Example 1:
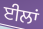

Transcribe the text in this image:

ਈਲਾਂ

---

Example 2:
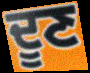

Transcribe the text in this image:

ਦੂਣ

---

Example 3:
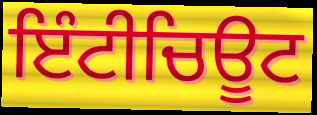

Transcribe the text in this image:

ਇੰਟੀਚਿਊਟ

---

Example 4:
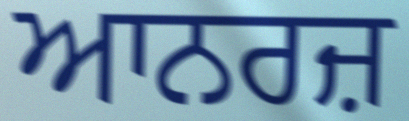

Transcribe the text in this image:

ਆਨਰਜ਼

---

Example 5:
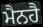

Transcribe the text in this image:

ਮੈਨਹੈ